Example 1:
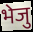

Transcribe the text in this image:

भेजु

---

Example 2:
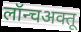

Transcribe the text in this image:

लॉन्चअक्तू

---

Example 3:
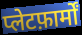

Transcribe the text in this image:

प्लेटफ़ार्मों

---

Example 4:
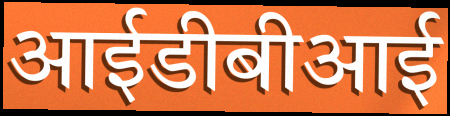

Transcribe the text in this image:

आईडीबीआई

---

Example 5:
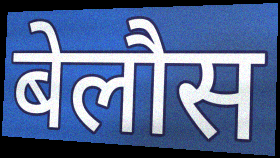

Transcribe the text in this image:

बेलौस